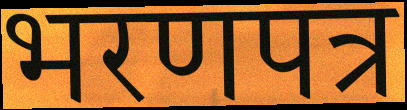
भरणपत्र